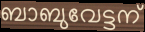
ബാബുവേട്ടന്